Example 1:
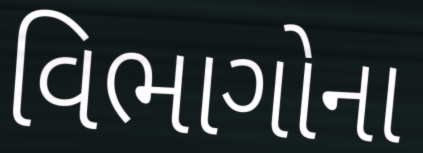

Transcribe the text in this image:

વિભાગોના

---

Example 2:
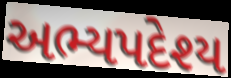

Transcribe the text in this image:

અભ્યપદેશ્ય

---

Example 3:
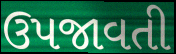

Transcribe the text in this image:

ઉપજાવતી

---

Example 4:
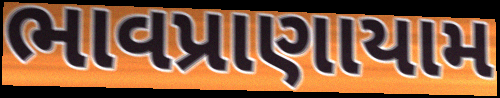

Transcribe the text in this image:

ભાવપ્રાણાયામ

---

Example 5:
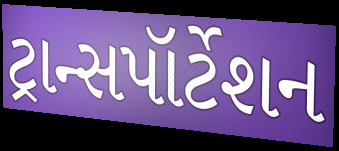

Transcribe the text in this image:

ટ્રાન્સપૉર્ટેશન